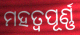
ମହତ୍ବପୂର୍ଣ୍ଣ